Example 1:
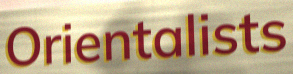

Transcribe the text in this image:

Orientalists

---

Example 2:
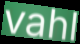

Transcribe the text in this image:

vahl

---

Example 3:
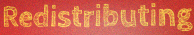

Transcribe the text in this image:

Redistributing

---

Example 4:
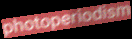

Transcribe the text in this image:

photoperiodism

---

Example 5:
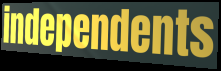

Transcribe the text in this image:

independents